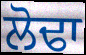
ਲੋਢਾ